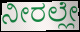
ನೀರಲ್ಲೇ